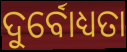
ଦୁର୍ବୋଧ୍ୟତା